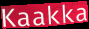
Kaakka